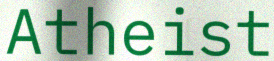
Atheist